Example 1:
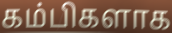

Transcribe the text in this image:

கம்பிகளாக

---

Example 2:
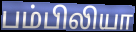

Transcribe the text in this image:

பம்பிலியா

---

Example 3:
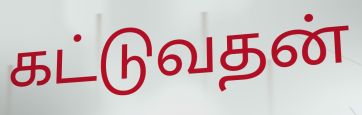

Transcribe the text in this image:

கட்டுவதன்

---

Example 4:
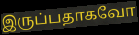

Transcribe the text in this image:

இருப்பதாகவோ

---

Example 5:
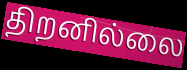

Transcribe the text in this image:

திறனில்லை